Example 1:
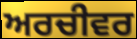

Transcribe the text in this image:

ਅਰਚੀਵਰ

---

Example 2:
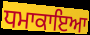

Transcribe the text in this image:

ਧਮਾਕਾਇਆ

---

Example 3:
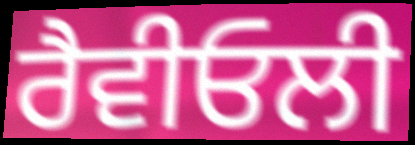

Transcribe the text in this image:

ਰੈਵੀਓਲੀ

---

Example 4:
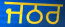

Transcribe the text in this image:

ਜਠਰ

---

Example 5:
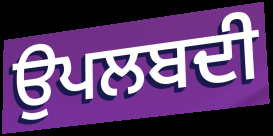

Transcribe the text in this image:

ਉਪਲਬਦੀ